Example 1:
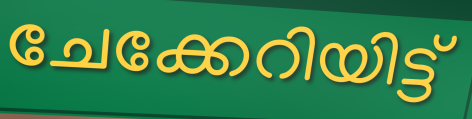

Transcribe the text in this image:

ചേക്കേറിയിട്ട്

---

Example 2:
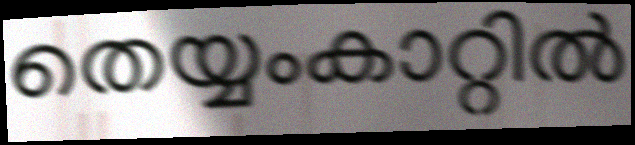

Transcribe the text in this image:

തെയ്യംകാറ്റിൽ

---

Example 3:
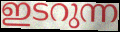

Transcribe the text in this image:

ഇടറുന്ന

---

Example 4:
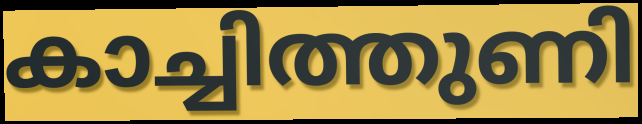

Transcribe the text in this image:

കാച്ചിത്തുണി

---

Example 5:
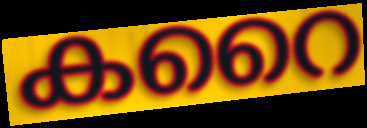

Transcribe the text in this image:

കറൈ